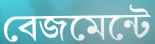
বেজমেন্টে